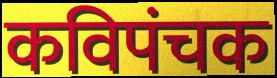
कविपंचक